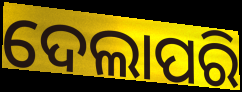
ଦେଲାପରି